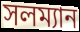
সলম্যান